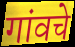
गांवचे